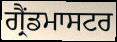
ਗ੍ਰੈਂਡਮਾਸਟਰ